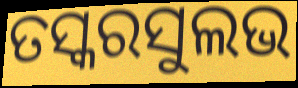
ତସ୍କରସୁଲଭ